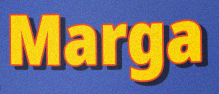
Marga